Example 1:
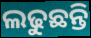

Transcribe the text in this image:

ଲଢୁଛନ୍ତି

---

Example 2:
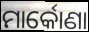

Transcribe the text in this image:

ମାର୍କୋଣା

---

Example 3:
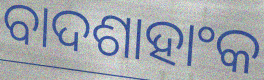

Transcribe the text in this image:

ବାଦଶାହାଂକ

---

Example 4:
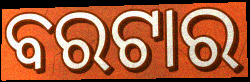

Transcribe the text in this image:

ବରଟାର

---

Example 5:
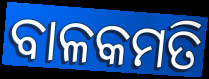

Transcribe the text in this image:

ବାଳକମତି